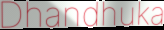
Dhandhuka